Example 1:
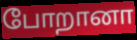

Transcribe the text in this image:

போறானா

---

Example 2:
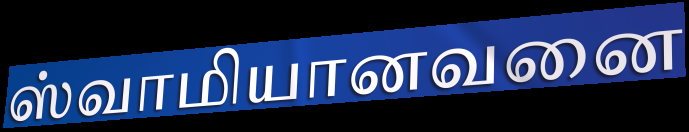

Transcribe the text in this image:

ஸ்வாமியானவனை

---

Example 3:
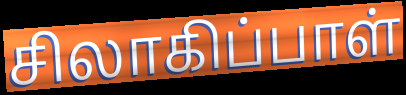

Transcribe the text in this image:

சிலாகிப்பாள்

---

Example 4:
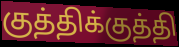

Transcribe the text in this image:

குத்திக்குத்தி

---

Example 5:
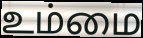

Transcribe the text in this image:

உம்மை